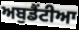
ਅਬੁਡੈਂਟੀਆ